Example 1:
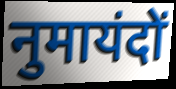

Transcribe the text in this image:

नुमायंदों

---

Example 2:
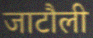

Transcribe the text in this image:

जाटौली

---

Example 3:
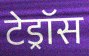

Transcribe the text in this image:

टेड्रॉस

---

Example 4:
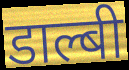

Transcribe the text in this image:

डाल्बी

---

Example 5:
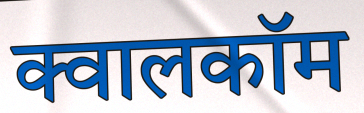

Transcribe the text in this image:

क्‍वालकॉम